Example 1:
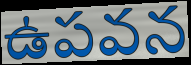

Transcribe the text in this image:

ఉపవన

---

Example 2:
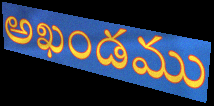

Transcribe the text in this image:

అఖండము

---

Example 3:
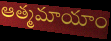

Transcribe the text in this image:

ఆత్మమాయాం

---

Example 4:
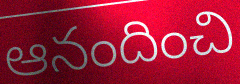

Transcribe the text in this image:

ఆనందించి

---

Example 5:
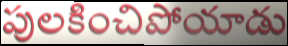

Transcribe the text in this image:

పులకించిపోయాడు